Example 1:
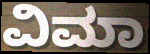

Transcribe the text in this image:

ವಿಮಾ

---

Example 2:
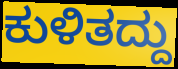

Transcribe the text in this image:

ಕುಳಿತದ್ದು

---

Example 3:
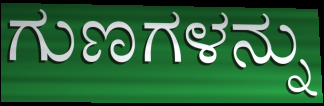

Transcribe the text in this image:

ಗುಣಗಳನ್ನು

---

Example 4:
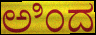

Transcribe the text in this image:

ಅಿಂದ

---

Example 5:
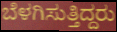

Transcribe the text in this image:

ಬೆಳಗಿಸುತ್ತಿದ್ದರು